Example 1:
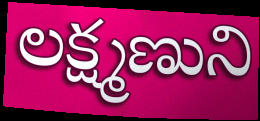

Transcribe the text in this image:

లక్ష్మణుని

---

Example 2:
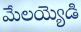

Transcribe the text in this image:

మేలయ్యెడి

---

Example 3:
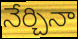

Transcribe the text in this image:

నేర్చినా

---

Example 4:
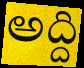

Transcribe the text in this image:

అద్ది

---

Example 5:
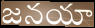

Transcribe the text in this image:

జనయా